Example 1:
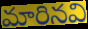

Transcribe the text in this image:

మారినవి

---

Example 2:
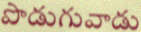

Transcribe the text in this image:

పొడుగువాడు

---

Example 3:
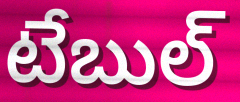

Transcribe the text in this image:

టేబుల్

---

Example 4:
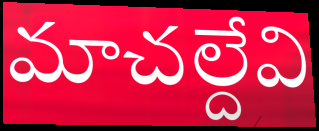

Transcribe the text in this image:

మాచల్దేవి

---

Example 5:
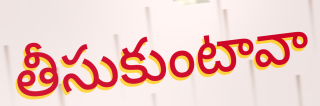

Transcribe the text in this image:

తీసుకుంటావా